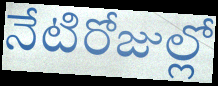
నేటిరోజుల్లో